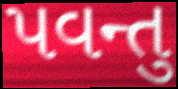
પવન્તુ